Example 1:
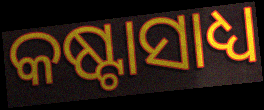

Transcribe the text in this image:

କଷ୍ଟାସାଧ୍ୟ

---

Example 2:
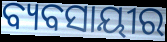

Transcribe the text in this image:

ବ୍ୟବସାୟୀର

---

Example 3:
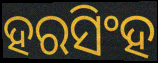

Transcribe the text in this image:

ହରସିଂହ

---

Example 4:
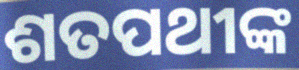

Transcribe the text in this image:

ଶତପଥୀଙ୍କ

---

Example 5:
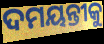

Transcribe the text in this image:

ଦମୟନ୍ତୀକୁ